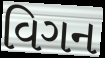
વિગન